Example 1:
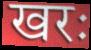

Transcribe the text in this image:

खरः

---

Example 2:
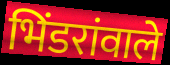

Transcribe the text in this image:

भिंडरांवाले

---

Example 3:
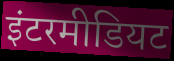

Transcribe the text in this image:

इंटरमीडियट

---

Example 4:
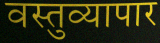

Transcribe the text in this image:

वस्तुव्यापार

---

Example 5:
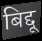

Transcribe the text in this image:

बिद्दू